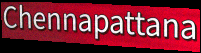
Chennapattana